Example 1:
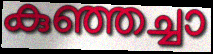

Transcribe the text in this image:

കുഞ്ഞച്ചാ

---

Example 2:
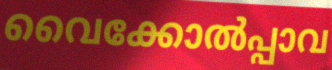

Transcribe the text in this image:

വൈക്കോൽപ്പാവ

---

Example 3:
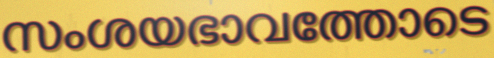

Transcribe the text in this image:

സംശയഭാവത്തോടെ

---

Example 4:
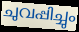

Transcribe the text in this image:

ചുവപ്പിച്ചും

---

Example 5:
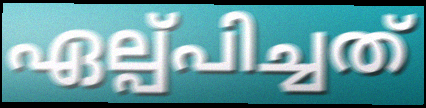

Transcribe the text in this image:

ഏല്പ്പിച്ചത്